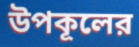
উপকূলের